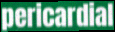
pericardial